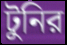
টুনির